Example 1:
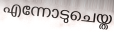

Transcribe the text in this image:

എന്നോടുചെയ്ത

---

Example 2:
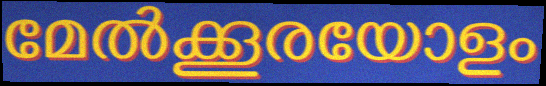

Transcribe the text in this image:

മേൽക്കൂരയോളം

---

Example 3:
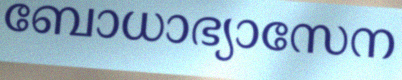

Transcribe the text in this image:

ബോധാഭ്യാസേന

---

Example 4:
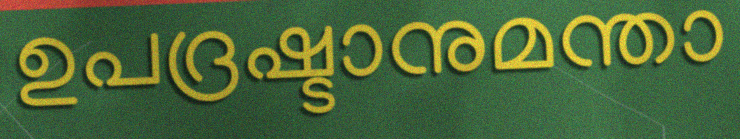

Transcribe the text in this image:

ഉപദ്രഷ്ടാനുമന്താ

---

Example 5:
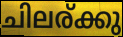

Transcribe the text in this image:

ചിലര്ക്കു